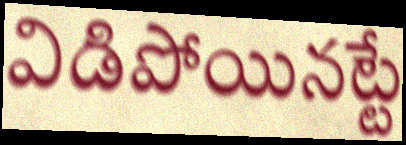
విడిపోయినట్టే